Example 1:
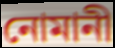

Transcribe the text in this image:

নোমানী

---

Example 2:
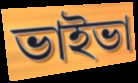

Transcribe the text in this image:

ভাইভা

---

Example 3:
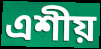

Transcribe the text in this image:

এশীয়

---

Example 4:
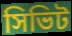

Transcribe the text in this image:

সিভিট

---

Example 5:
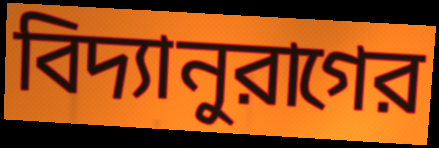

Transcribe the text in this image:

বিদ্যানুরাগের